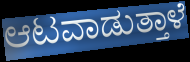
ಆಟವಾಡುತ್ತಾಳೆ